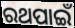
ରଥପାଇଁ